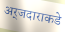
अर्जदाराकडे